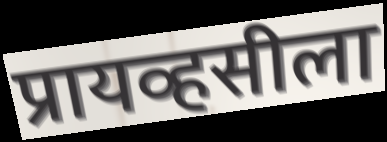
प्रायव्हसीला